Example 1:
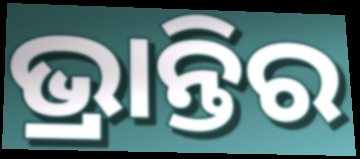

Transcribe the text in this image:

ଭ୍ରାନ୍ତିର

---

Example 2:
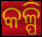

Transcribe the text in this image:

କଳ୍ପି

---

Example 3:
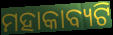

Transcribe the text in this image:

ମହାକାବ୍ୟଟି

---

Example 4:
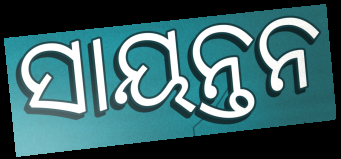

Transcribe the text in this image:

ସାୟନ୍ତନ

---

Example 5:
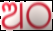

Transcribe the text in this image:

ଅଠ